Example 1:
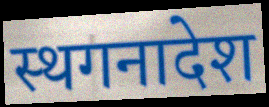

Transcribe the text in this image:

स्थगनादेश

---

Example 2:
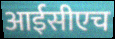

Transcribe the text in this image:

आईसीएच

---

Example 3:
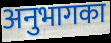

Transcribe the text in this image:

अनुभागका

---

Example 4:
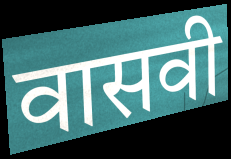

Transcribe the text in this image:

वासवी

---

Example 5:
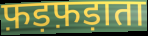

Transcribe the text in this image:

फ़ड़फ़ड़ाता